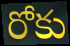
రోకు